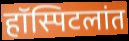
हॉस्पिटलांत